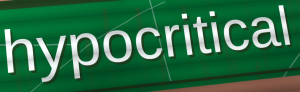
hypocritical